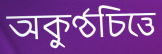
অকুণ্ঠচিত্তে